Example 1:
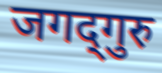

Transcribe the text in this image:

जगद्‍गुरु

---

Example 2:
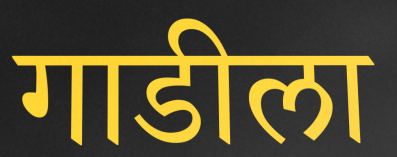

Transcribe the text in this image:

गाडीला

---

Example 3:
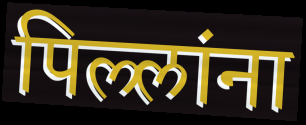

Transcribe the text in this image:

पिल्लांना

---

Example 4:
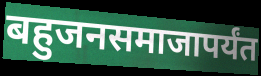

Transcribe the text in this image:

बहुजनसमाजापर्यंत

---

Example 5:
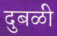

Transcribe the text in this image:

दुबळी